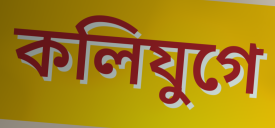
কলিযুগে